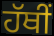
ਹੱਥੀਂ